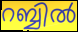
റബ്ബിൽ